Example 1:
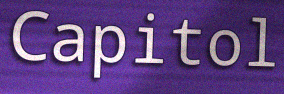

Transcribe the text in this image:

Capitol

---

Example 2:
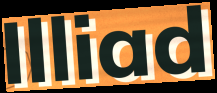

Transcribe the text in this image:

Illiad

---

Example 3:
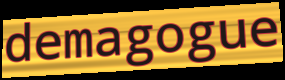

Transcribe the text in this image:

demagogue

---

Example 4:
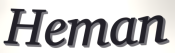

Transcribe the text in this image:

Heman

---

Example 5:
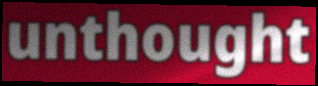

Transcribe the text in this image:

unthought